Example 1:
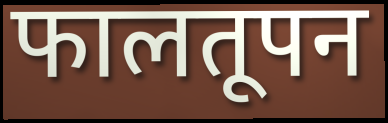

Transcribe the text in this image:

फालतूपन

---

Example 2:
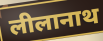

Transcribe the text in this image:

लीलानाथ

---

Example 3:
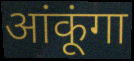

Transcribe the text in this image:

आंकूंगा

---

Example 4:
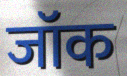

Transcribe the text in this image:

जॉक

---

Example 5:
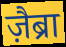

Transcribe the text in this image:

ज़ैब्रा